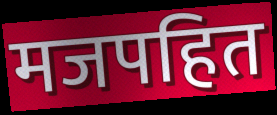
मजपहित